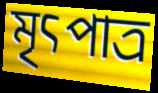
মৃৎপাত্র